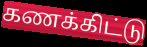
கணக்கிட்டு